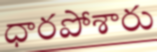
ధారపోశారు